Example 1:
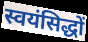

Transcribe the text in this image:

स्वयंसिद्धों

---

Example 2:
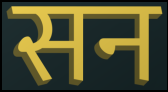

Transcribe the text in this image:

सन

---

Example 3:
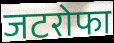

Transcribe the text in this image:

जटरोफा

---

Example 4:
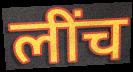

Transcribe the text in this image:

लींच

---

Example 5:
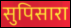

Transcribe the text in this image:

सुपिसारा